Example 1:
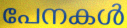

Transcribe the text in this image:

പേനകൾ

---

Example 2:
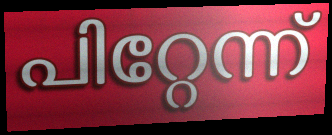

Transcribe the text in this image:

പിറ്റേന്ന്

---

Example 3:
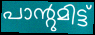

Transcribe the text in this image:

പാന്റുമിട്ട്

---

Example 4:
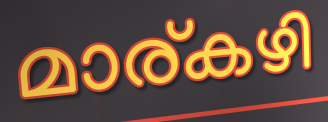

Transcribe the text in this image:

മാര്കഴി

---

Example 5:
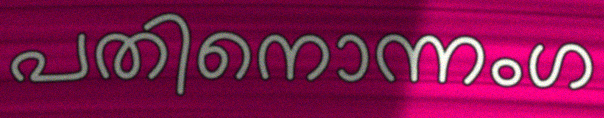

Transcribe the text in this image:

പതിനൊന്നംഗ